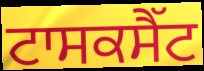
ਟਾਸਕਸੈੱਟ